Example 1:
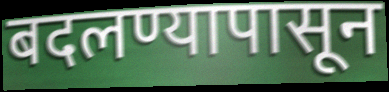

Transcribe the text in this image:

बदलण्यापासून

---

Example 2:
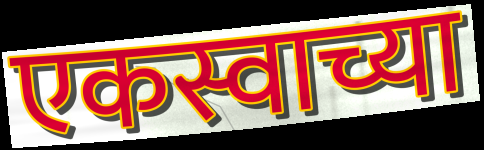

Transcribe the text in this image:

एकस्वाच्या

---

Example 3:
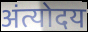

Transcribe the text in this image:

अंत्योदय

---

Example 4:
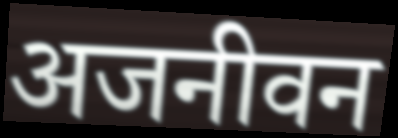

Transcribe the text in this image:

अजनीवन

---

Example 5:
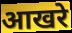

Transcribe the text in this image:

आखरे